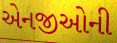
એનજીઓની